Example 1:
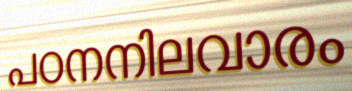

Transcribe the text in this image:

പഠനനിലവാരം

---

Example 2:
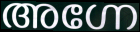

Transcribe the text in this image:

അഗ്നേ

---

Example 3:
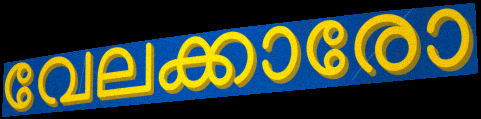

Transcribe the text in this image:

വേലക്കാരോ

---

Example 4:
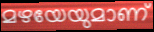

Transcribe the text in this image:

മഴയേയുമാണ്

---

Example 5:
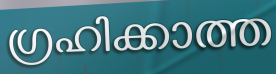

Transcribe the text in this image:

ഗ്രഹിക്കാത്ത